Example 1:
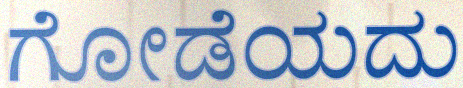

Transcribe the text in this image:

ಗೋಡೆಯದು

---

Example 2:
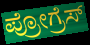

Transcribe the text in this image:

ಪ್ರೋಗ್ರೆಸ್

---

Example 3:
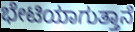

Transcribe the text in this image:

ಭೇಟಿಯಾಗುತ್ತಾನೆ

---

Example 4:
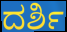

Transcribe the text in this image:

ದರ್ಶಿ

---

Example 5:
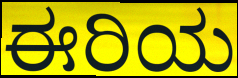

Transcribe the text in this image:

ಈರಿಯ